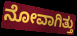
ನೋವಾಗಿತ್ತು